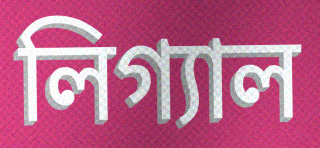
লিগ্যাল